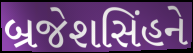
બ્રજેશસિંહને